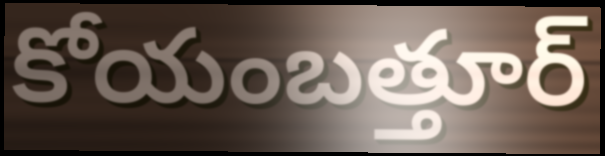
కోయంబత్తూర్